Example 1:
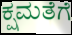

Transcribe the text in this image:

ಕ್ಷಮತೆಗೆ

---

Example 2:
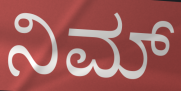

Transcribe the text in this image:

ನಿಮ್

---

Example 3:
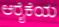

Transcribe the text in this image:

ಆರೈಕೆಯ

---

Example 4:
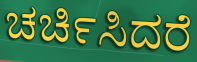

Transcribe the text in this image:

ಚರ್ಚಿಸಿದರೆ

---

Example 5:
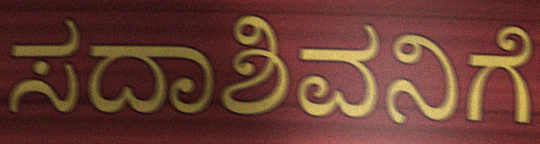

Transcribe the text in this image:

ಸದಾಶಿವನಿಗೆ